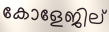
കോളേജില്